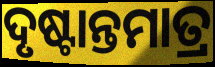
ଦୃଷ୍ଟାନ୍ତମାତ୍ର